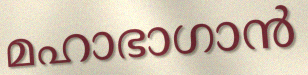
മഹാഭാഗാൻ